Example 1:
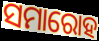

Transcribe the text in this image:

ସମାରୋହ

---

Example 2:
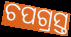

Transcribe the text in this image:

ଚପଗ୍ରସ୍ତ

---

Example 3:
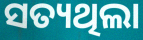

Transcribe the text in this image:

ସତ୍ୟଥିଲା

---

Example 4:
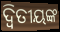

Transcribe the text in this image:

ଦ୍ଵିତୀୟଙ୍କ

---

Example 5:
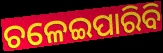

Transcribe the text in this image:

ଚଳେଇପାରିବି